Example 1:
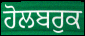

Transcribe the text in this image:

ਹੋਲਬਰੁਕ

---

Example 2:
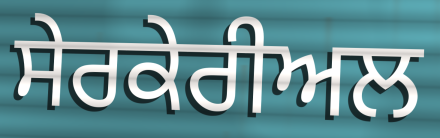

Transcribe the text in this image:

ਸੇਰਕੇਰੀਅਲ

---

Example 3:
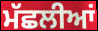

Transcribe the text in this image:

ਮੱਛਲੀਆਂ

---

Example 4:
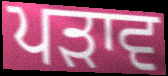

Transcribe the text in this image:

ਪੜਾਵ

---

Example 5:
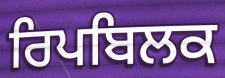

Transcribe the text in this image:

ਰਿਪਬਿਲਕ